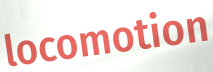
locomotion